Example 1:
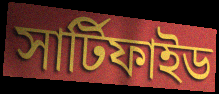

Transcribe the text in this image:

সার্টিফাইড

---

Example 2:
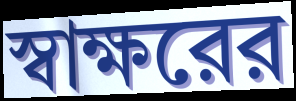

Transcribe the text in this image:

স্বাক্ষরের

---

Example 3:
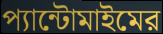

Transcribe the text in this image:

প্যান্টোমাইমের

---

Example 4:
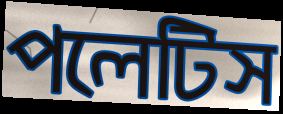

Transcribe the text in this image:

পলেটিস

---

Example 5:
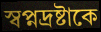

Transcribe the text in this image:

স্বপ্নদ্রষ্টাকে